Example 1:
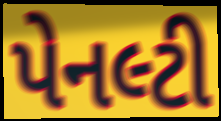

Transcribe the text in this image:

પેનલ્ટી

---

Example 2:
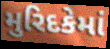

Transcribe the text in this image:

મુરિદકેમાં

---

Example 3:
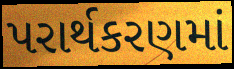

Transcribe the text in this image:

પરાર્થકરણમાં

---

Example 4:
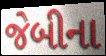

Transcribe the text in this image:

જેબીના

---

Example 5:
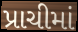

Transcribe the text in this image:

પ્રાચીમાં